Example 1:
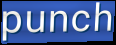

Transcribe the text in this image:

punch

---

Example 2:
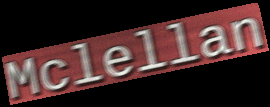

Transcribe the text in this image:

Mclellan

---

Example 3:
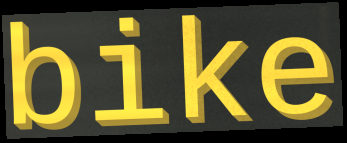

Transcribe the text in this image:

bike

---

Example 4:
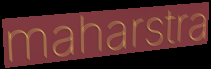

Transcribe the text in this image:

maharstra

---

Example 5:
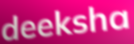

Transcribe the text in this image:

deeksha